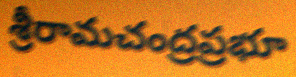
శ్రీరామచంద్రప్రభూ